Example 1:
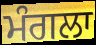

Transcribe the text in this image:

ਮੰਗਲਾ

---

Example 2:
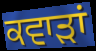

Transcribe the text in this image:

ਕਵਾੜਾਂ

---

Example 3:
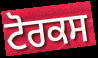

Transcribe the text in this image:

ਟੋਰਕਸ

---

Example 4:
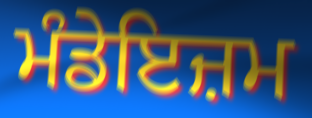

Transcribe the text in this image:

ਮੰਡੇਇਜ਼ਮ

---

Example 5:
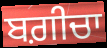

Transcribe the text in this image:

ਬਗ਼ੀਚਾ